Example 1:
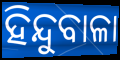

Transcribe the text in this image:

ହିନ୍ଦୁବାଳା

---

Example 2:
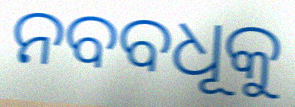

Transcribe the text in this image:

ନବବଧୂକୁ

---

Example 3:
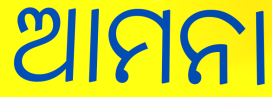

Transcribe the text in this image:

ଆମନା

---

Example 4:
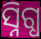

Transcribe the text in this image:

ସ୍ନିଗ୍ଧ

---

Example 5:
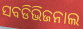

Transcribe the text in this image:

ସବଡିଭିଜନାଲ